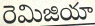
రెమిజియా